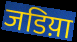
जडिय़ा